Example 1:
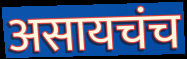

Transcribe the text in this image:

असायचंच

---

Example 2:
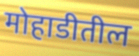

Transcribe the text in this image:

मोहाडीतील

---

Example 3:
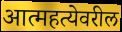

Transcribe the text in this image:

आत्महत्येवरील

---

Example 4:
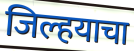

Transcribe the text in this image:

जिल्हयाचा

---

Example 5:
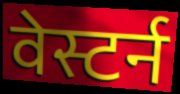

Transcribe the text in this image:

वेस्टर्न